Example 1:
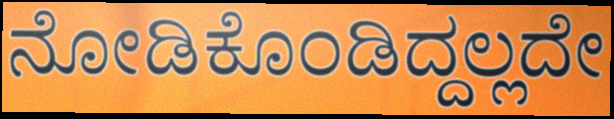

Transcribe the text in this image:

ನೋಡಿಕೊಂಡಿದ್ದಲ್ಲದೇ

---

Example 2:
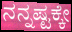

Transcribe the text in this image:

ನನ್ನಷ್ಟಕ್ಕೇ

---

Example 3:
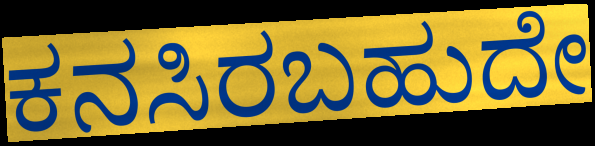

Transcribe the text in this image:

ಕನಸಿರಬಹುದೇ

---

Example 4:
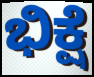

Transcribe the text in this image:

ಭಿಕ್ಷೆ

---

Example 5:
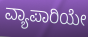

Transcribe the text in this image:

ವ್ಯಾಪಾರಿಯೇ